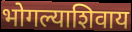
भोगल्याशिवाय